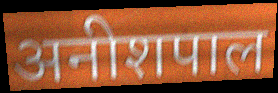
अनीशपाल